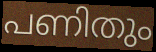
പണിതും